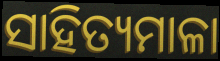
ସାହିତ୍ୟମାଳା